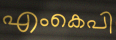
എംകെപി